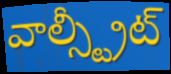
వాల్స్ట్రీట్